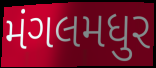
મંગલમધુર